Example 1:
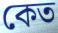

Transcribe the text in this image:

কেত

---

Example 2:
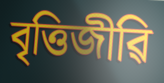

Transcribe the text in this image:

বৃত্তিজীৱি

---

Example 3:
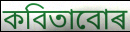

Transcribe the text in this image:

কবিতাবোৰ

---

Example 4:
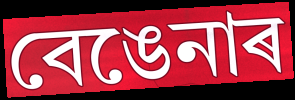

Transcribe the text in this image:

বেঙেনাৰ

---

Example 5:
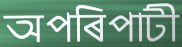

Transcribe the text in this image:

অপৰিপাটী